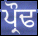
ਪ੍ਰੌਢ